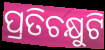
ପ୍ରତିଚକ୍ଷୁଟି